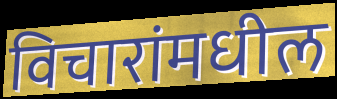
विचारांमधील